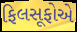
ફિલસૂફોએ